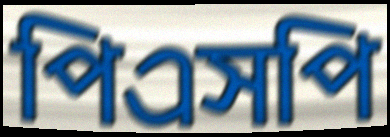
পিএসপি